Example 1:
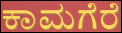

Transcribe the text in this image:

ಕಾಮಗೆರೆ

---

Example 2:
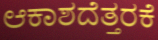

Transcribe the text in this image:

ಆಕಾಶದೆತ್ತರಕೆ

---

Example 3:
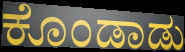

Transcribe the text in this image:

ಕೊಂಡಾಡು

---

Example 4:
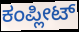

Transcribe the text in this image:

ಕಂಪ್ಲೀಟ್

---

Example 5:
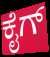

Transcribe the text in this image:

ಕೈಗ್